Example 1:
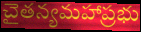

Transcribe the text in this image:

చైతన్యమహాప్రభు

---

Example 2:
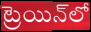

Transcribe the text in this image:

ట్రెయిన్‌లో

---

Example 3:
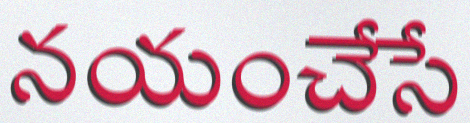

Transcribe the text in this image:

నయంచేసే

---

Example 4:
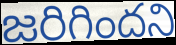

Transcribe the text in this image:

జరిగిందని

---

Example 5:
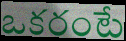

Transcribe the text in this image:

ఒకరంటే